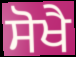
ਸੋਖੈ